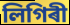
লিগিৰী